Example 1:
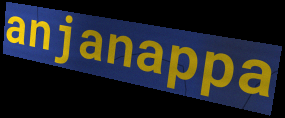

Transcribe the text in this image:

anjanappa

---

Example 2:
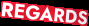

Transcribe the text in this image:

REGARDS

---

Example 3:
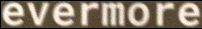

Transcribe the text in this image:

evermore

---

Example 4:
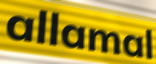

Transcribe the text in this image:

allamal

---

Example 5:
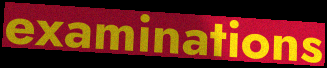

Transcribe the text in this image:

examinations